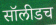
सॉलीडच